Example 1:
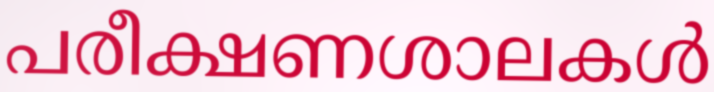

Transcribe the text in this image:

പരീക്ഷണശാലകൾ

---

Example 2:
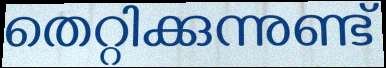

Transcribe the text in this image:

തെറ്റിക്കുന്നുണ്ട്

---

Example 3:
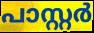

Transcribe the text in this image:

പാസ്റ്റർ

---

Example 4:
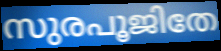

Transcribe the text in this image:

സുരപൂജിതേ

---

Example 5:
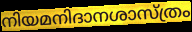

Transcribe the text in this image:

നിയമനിദാനശാസ്ത്രം